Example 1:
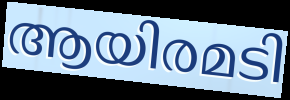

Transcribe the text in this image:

ആയിരമടി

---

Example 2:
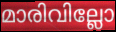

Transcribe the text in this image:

മാരിവില്ലോ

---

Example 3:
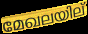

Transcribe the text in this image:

മേഖലയില്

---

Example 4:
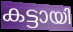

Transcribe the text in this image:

കട്ടായി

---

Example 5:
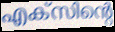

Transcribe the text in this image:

എക്‌സിന്റെ